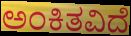
ಅಂಕಿತವಿದೆ